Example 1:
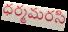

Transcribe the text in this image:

ధర్మమరసి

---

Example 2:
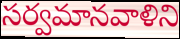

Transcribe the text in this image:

సర్వమానవాళిని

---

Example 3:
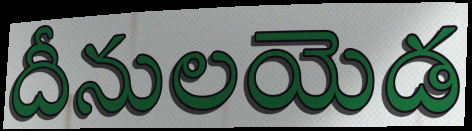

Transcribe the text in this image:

దీనులయెడ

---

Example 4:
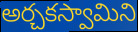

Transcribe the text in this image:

అర్చకస్వామిని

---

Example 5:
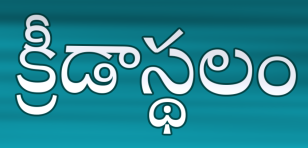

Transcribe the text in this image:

క్రీడాస్థలం